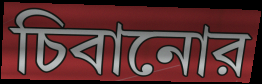
চিবানোর